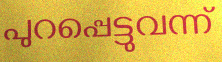
പുറപ്പെട്ടുവന്ന്